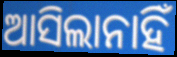
ଆସିଲାନାହିଁ